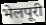
भेलपूरी